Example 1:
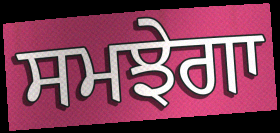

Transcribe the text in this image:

ਸਮਝੇਗਾ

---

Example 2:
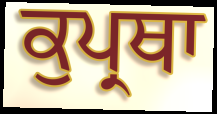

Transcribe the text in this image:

ਕੁਪ੍ਰਥਾ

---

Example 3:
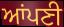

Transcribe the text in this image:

ਆਂਪਣੀ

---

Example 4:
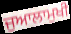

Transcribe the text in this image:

ਜੁਆਲਾਮੁਖੀ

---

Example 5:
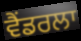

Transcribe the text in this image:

ਵੈਂਡਰਲਾ